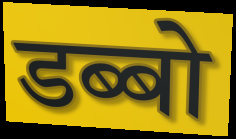
डब्बो